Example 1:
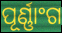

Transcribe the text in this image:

ପୂର୍ଣ୍ଣାଂଗ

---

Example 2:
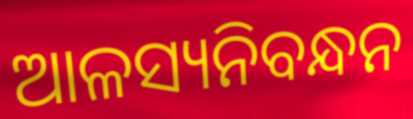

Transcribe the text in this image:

ଆଳସ୍ୟନିବନ୍ଧନ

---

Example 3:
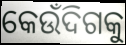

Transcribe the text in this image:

କେଉଁଦିଗକୁ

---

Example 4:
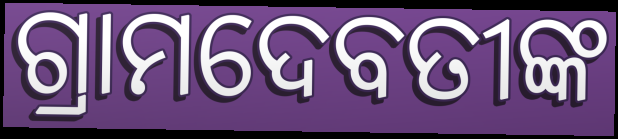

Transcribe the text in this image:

ଗ୍ରାମଦେବତୀଙ୍କ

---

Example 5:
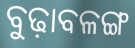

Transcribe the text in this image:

ବୁଢ଼ାବଳଙ୍ଗ